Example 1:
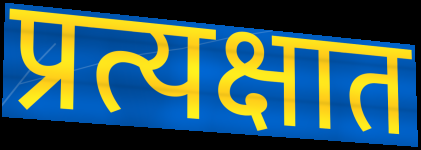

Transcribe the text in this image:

प्रत्यक्षात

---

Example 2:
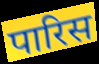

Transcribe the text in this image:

पारिस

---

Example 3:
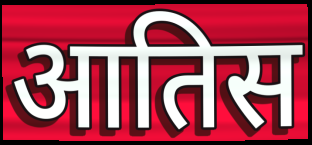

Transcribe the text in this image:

आतिस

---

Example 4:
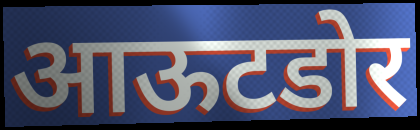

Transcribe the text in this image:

आऊटडोर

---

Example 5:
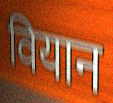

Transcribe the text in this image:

वियान